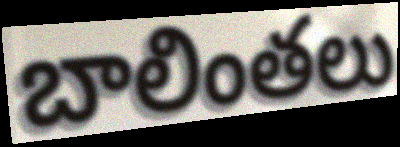
బాలింతలు